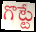
గొట్టే